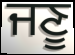
ਜਣੂ